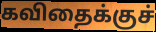
கவிதைக்குச்